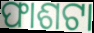
ଫାଶଟା